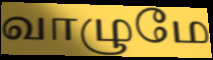
வாழுமே